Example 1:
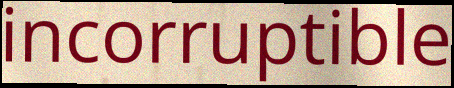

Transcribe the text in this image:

incorruptible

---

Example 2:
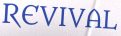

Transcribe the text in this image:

REVIVAL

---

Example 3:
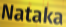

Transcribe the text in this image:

Nataka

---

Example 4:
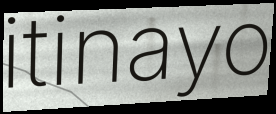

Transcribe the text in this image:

itinayo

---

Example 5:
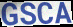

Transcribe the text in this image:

GSCA